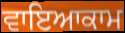
ਵਾਇਆਕਾਮ